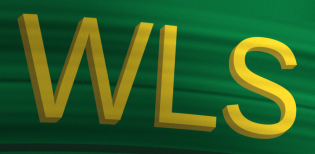
WLS